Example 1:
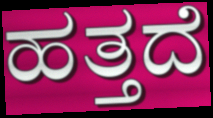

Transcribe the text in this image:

ಹತ್ತದೆ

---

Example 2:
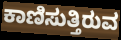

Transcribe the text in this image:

ಕಾಣಿಸುತ್ತಿರುವ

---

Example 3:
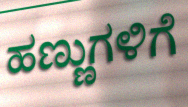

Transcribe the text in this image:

ಹಣ್ಣುಗಳಿಗೆ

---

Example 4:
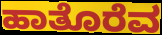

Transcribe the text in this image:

ಹಾತೊರೆವ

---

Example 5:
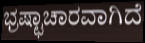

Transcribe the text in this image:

ಭ್ರಷ್ಟಾಚಾರವಾಗಿದೆ